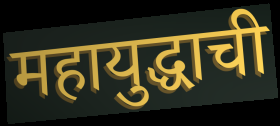
महायुद्धाची